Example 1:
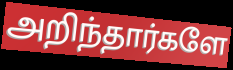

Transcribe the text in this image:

அறிந்தார்களே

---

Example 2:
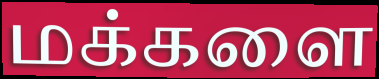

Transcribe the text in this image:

மக்களை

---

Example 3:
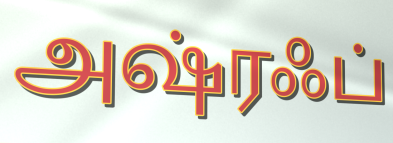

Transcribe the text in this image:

அஷ்ரஃப்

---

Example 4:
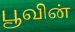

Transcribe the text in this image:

பூவின்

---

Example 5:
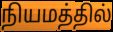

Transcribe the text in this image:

நியமத்தில்